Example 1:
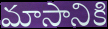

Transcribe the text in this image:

మాసానికి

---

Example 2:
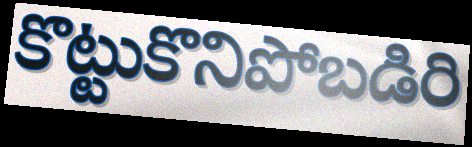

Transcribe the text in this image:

కొట్టుకొనిపోబడిరి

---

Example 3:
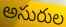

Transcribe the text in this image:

అసురుల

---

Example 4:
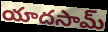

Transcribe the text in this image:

యాదసామ్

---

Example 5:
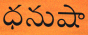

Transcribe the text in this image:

ధనుషా